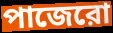
পাজেরো